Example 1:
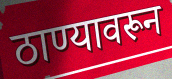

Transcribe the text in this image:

ठाण्यावरून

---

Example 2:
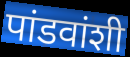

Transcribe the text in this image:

पांडवांशी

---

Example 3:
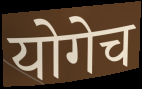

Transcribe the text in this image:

योगेच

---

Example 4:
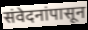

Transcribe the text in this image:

संवेदनांपासून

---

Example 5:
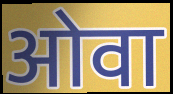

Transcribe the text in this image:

ओवा